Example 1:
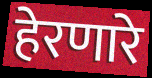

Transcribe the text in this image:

हेरणारे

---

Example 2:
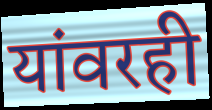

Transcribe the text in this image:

यांवरही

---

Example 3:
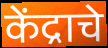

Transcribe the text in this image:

केंद्राचे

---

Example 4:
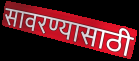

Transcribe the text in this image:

सावरण्यासाठी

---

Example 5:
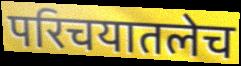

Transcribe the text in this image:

परिचयातलेच